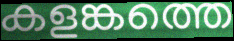
കളങ്കത്തെ